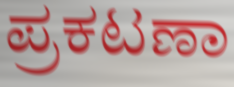
ಪ್ರಕಟಣಾ